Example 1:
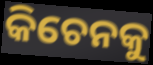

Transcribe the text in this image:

କିଚେନକୁ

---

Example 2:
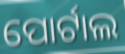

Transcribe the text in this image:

ପୋର୍ଟାଲ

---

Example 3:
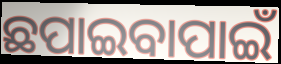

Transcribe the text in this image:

ଛପାଇବାପାଇଁ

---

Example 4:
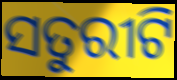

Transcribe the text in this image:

ସତୁରୀଟି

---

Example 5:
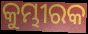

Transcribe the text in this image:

କୁମ୍ଭୀରକ